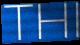
THI